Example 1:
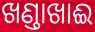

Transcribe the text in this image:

ଖଣ୍ଡାଖାଈ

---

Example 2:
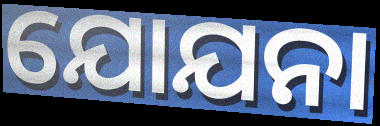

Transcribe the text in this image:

ଯୋଯନା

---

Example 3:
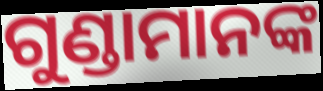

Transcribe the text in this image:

ଗୁଣ୍ଡାମାନଙ୍କ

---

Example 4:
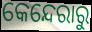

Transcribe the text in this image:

କେନ୍ଦେରାରୁ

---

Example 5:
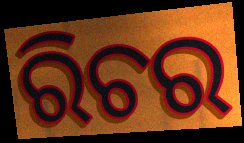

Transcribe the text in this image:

ରିଚର